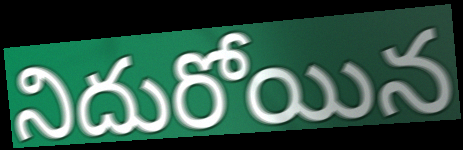
నిదురోయిన